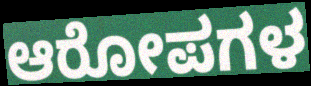
ಆರೋಪಗಳ